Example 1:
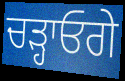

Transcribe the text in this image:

ਚੜ੍ਹਾਓਗੇ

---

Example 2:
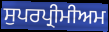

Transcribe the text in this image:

ਸੁਪਰਪ੍ਰੀਮੀਅਮ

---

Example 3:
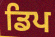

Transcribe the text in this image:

ਡਿਪ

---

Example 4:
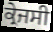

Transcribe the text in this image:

ਕ੍ਰੇਜਸੀ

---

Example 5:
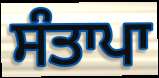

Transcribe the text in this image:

ਸੰਤਾਪਾ